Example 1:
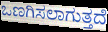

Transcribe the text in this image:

ಒಣಗಿಸಲಾಗುತ್ತದೆ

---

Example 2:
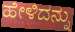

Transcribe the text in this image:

ಹೇಳಿದನ್ನು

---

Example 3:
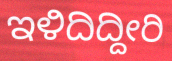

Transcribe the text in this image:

ಇಳಿದಿದ್ದೀರಿ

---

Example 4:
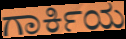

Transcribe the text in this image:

ಗಾರ್ಕಿಯ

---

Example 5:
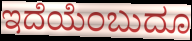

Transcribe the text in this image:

ಇದೆಯೆಂಬುದೂ